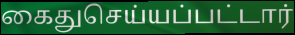
கைதுசெய்யப்பட்டார்